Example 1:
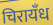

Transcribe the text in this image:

चिरायँध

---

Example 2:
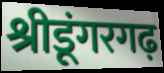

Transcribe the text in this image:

श्रीडूंगरगढ़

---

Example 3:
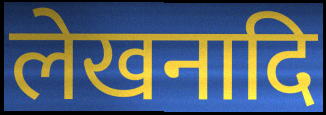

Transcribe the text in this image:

लेखनादि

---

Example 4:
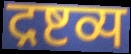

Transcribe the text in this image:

द्रष्टव्य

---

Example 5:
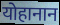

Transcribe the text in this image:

योहानान